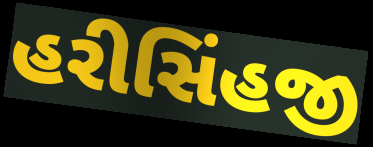
હરીસિંહજી